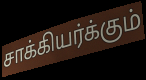
சாக்கியர்க்கும்